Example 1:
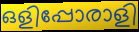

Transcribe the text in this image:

ഒളിപ്പോരാളി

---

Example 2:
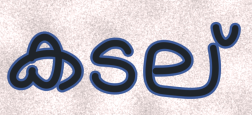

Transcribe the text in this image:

കടല്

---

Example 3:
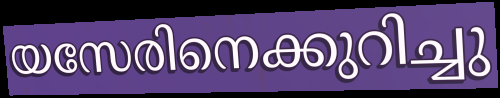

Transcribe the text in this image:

യസേരിനെക്കുറിച്ചു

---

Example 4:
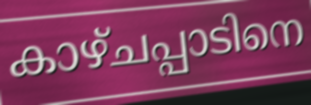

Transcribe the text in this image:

കാഴ്ചപ്പാടിനെ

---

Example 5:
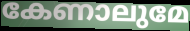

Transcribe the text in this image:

കേണാലുമേ